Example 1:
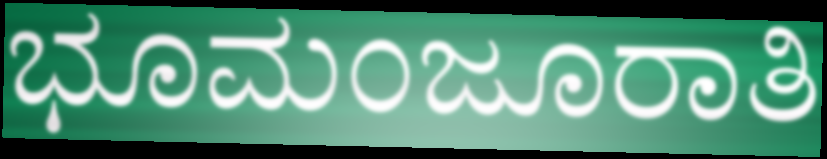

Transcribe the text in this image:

ಭೂಮಂಜೂರಾತಿ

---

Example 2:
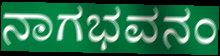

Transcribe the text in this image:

ನಾಗಭವನಂ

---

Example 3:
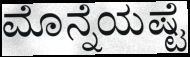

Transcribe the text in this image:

ಮೊನ್ನೆಯಷ್ಟೆ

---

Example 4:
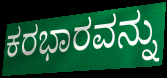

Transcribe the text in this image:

ಕರಭಾರವನ್ನು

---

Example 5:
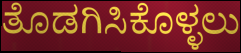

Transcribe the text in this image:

ತೊಡಗಿಸಿಕೊಳ್ಳಲು